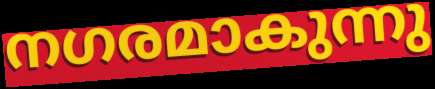
നഗരമാകുന്നു